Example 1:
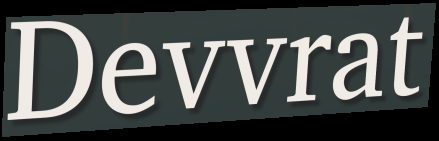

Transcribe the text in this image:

Devvrat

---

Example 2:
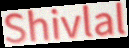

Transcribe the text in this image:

Shivlal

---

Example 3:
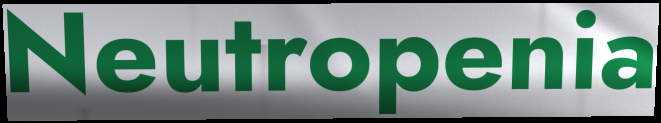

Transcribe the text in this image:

Neutropenia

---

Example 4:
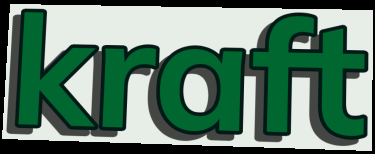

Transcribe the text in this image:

kraft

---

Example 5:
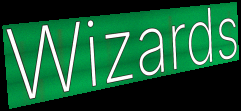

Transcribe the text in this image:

Wizards